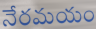
నేరమయం